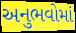
અનુભવોમાં